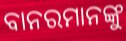
ବାନରମାନଙ୍କୁ